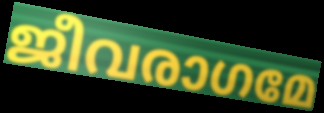
ജീവരാഗമേ